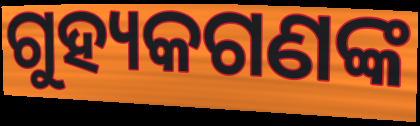
ଗୁହ୍ୟକଗଣଙ୍କ